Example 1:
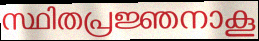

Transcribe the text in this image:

സ്ഥിതപ്രജ്ഞനാകൂ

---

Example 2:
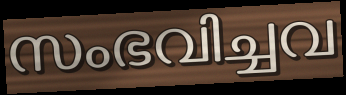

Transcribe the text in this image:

സംഭവിച്ചവ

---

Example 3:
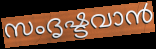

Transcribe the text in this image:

സംദൃഷ്ടവാൻ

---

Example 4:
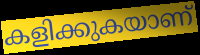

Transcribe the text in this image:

കളിക്കുകയാണ്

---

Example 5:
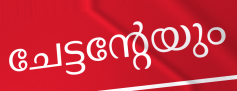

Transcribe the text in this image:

ചേട്ടന്റേയും